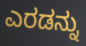
ಎರಡನ್ನು